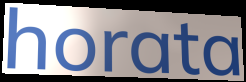
horata